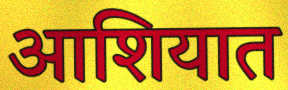
आशियात